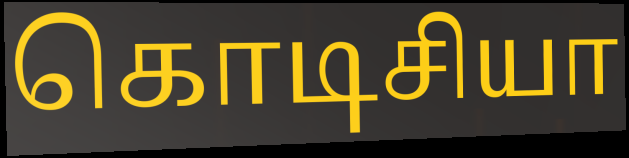
கொடிசியா